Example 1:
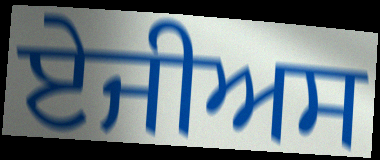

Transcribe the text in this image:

ਏਜੀਅਸ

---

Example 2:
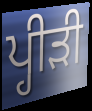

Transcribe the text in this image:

ਪ੍ਹੀੜੀ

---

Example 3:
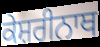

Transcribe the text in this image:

ਕੇਸ਼ਰੀਨਾਥ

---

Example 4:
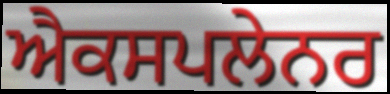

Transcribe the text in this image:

ਐਕਸਪਲੇਨਰ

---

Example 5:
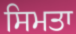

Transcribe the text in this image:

ਸਿਮਤਾ